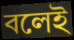
বলেই